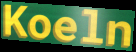
Koeln